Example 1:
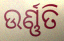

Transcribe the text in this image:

ଉର୍ଣ୍ଣତି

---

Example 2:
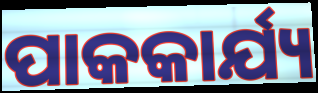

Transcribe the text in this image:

ପାକକାର୍ଯ୍ୟ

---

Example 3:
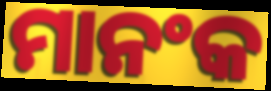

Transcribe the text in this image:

ମାନଂକ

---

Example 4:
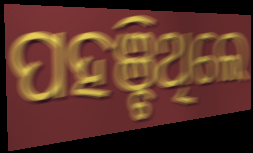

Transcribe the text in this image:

ପହଞ୍ଚିଥିଲେ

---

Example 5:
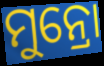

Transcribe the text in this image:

ମୁନ୍ରୋ